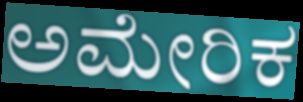
ಅಮೇರಿಕ